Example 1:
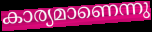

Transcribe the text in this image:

കാര്യമാണെന്നു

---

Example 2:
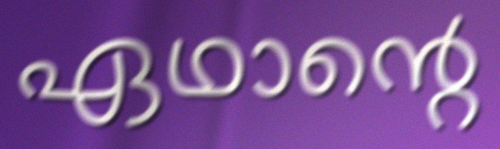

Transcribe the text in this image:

ഏഥാന്റെ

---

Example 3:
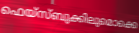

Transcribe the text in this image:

ഫെയ്സ്ബുക്കിലുമൊക്കെ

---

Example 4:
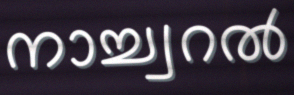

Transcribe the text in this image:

നാച്ച്വറൽ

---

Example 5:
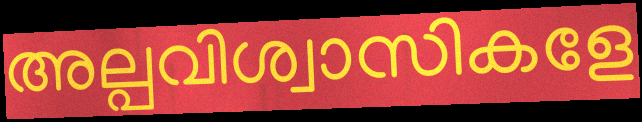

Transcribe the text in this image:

അല്പവിശ്വാസികളേ